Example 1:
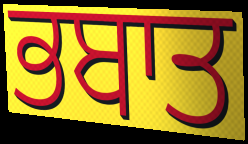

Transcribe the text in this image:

ਭਬਾਤ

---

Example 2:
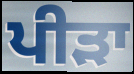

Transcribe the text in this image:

ਪੀੜਾ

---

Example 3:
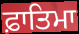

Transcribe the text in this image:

ਫ਼ਾਤਿਮਾ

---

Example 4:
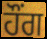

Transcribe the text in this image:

ਹੌਂਗ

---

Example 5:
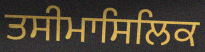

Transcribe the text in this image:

ਤਸੀਮਾਸਿਲਿਕ